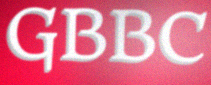
GBBC